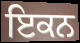
ਇਕਨ